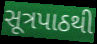
સૂત્રપાઠથી